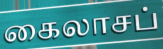
கைலாசப்